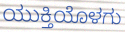
ಯುಕ್ತಿಯೊಳಗು